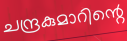
ചന്ദ്രകുമാറിന്റെ